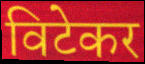
विटेकर